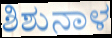
ಶಿಶುನಾಳ